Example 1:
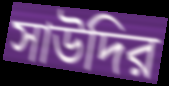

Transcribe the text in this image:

সাউদির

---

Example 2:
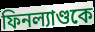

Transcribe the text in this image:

ফিনল্যাণ্ডকে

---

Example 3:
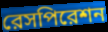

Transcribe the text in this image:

রেসপিরেশন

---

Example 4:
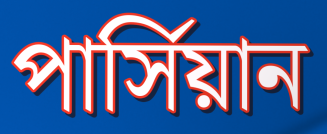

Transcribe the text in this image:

পার্সিয়ান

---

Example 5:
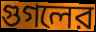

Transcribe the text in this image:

গুগলের